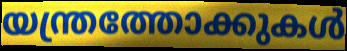
യന്ത്രത്തോക്കുകൾ